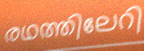
രഥത്തിലേറി